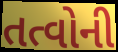
તત્વોની